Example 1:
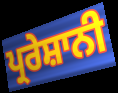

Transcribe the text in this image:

ਪ੍ਰਰੇਸ਼ਾਨੀ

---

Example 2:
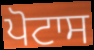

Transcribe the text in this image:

ਪੋਟਾਸ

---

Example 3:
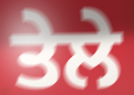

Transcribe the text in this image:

ਤੇਲੇ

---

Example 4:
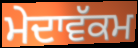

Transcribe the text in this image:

ਮੇਦਾਵੱਕਮ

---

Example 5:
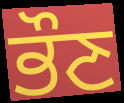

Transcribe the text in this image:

ਭੌਣ